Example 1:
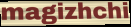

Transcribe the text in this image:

magizhchi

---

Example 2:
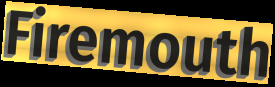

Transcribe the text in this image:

Firemouth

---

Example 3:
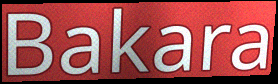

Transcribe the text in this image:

Bakara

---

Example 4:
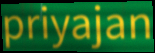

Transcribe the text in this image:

priyajan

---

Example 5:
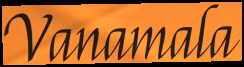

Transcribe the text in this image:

Vanamala